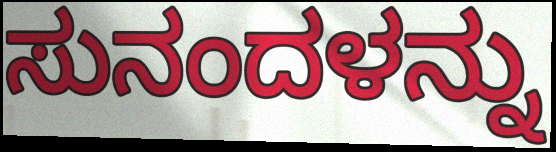
ಸುನಂದಳನ್ನು